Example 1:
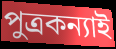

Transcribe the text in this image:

পুত্রকন্যাই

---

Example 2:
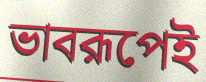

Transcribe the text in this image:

ভাবরূপেই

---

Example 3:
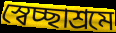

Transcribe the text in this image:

স্বেচ্ছাশ্রমে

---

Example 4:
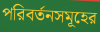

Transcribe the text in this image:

পরিবর্তনসমূহের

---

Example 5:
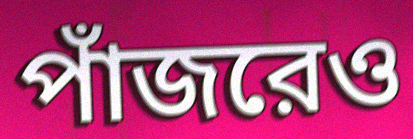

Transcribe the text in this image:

পাঁজরেও